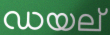
ഡയല്